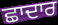
ਛਾਦਾਰ